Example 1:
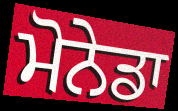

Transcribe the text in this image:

ਮੋਨੇਡਾ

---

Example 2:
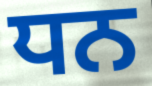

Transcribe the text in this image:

ਧਨ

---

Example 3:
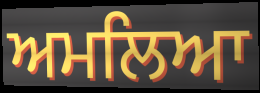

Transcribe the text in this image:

ਅਮਲਿਆ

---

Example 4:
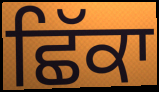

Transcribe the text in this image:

ਛਿੱਕਾ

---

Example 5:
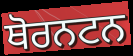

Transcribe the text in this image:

ਥੋਰਨਟਨ